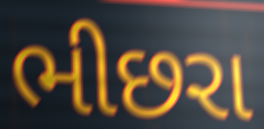
ભીછરા